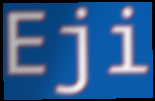
Eji